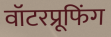
वॉटरप्रूफिंग